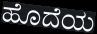
ಹೊದೆಯ